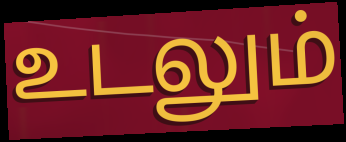
உடலும்